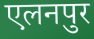
एलनपुर